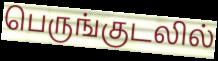
பெருங்குடலில்